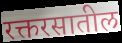
रक्तरसातील